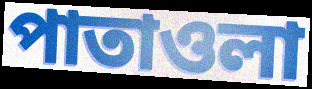
পাতাওলা